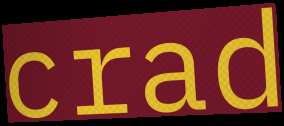
crad